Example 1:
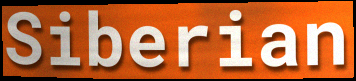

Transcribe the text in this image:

Siberian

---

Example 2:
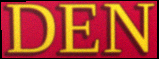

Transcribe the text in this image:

DEN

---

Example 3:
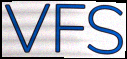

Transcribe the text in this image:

VFS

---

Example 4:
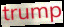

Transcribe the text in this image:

trump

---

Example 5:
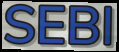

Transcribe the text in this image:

SEBI